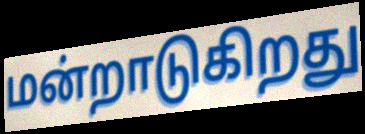
மன்றாடுகிறது